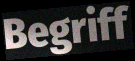
Begriff